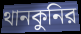
থানকুনির